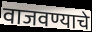
वाजवण्याचे